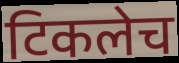
टिकलेच